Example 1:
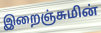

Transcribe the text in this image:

இறைஞ்சுமின்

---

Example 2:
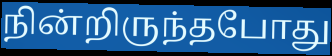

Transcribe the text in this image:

நின்றிருந்தபோது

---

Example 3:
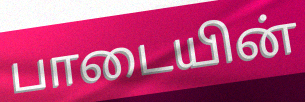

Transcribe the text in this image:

பாடையின்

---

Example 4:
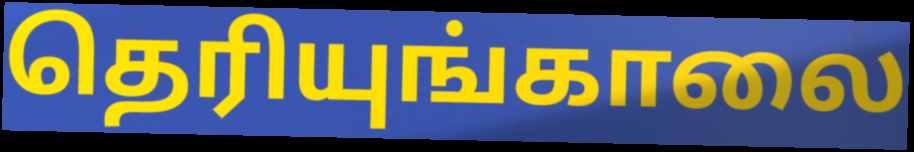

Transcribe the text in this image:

தெரியுங்காலை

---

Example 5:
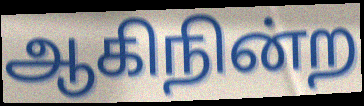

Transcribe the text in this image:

ஆகிநின்ற